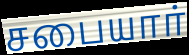
சபையார்